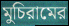
মুচিরামের